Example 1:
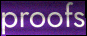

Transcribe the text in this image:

proofs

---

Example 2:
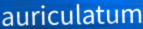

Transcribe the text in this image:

auriculatum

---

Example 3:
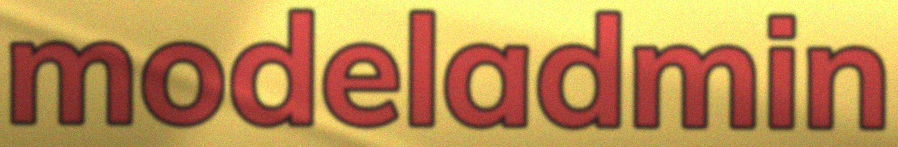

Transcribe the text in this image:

modeladmin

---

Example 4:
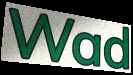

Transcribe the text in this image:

Wad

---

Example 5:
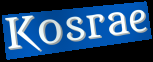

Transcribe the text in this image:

Kosrae